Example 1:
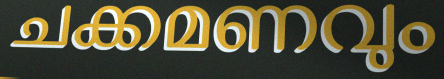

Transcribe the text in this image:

ചക്കമണവും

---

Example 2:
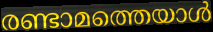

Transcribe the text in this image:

രണ്ടാമത്തെയാൾ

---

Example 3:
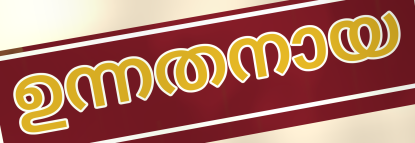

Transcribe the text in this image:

ഉന്നതനായ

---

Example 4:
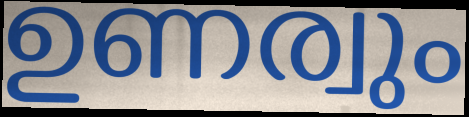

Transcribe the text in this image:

ഉണര്വും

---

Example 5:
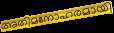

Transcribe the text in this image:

അതിമനോഹരമായി